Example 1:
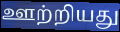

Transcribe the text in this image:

ஊற்றியது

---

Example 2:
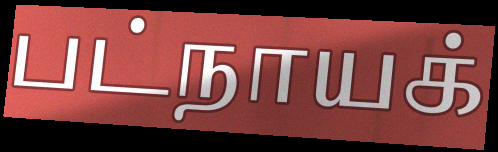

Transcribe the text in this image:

பட்நாயக்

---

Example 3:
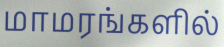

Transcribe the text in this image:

மாமரங்களில்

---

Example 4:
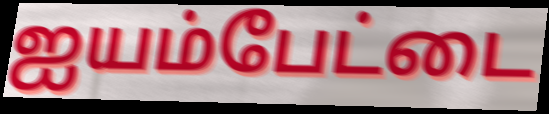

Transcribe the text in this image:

ஐயம்பேட்டை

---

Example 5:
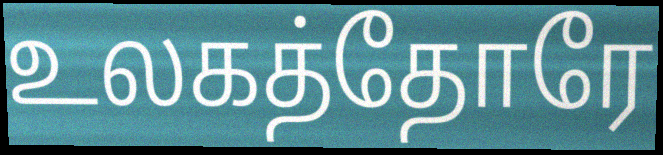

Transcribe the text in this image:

உலகத்தோரே